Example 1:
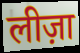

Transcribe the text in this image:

लीज़ा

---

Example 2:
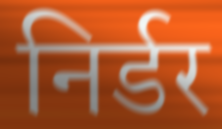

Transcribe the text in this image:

निर्डर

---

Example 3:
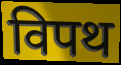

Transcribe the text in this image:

विपथ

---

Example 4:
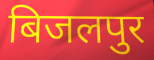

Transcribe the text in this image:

बिजलपुर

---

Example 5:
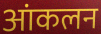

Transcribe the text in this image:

आंकलन